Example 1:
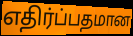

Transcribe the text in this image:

எதிர்ப்பதமான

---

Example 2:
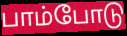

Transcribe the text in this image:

பாம்போடு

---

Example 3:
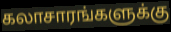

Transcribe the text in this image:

கலாசாரங்களுக்கு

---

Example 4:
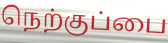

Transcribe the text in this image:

நெற்குப்பை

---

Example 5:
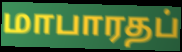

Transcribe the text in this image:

மாபாரதப்